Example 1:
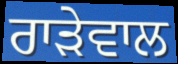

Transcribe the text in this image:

ਰਾੜੇਵਾਲ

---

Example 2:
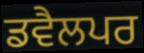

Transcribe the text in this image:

ਡਵੈਲਪਰ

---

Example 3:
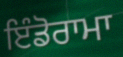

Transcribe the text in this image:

ਇੰਡੋਰਾਮਾ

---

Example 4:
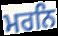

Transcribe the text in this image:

ਮਰਨਿ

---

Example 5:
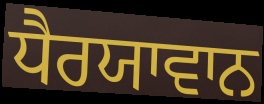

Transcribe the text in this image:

ਧੈਰਯਾਵਾਨ